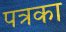
पत्रका